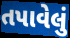
તપાવેલું